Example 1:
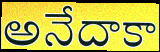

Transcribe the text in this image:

అనేదాకా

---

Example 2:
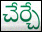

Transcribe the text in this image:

చేర్చే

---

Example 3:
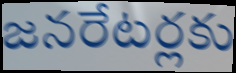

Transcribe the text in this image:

జనరేటర్లకు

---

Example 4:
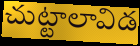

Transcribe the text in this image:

చుట్టాలావిడ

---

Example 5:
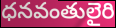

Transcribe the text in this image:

ధనవంతులైరి